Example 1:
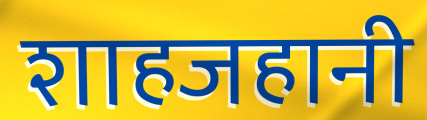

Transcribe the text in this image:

शाहजहानी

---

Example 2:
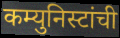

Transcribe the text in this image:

कम्युनिस्टांची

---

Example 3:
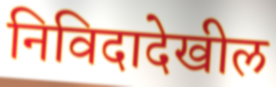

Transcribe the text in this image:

निविदादेखील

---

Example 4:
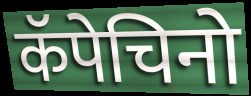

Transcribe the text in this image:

कॅपेचिनो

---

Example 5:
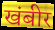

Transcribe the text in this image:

खंबीर